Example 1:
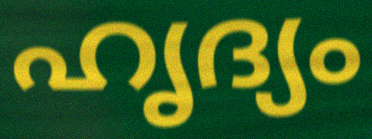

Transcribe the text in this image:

ഹൃദ്യം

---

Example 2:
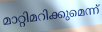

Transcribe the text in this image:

മാറ്റിമറിക്കുമെന്ന്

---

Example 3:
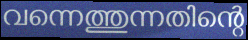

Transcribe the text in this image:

വന്നെത്തുന്നതിന്റെ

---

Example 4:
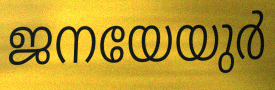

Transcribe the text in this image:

ജനയേയുർ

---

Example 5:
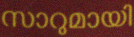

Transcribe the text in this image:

സാറുമായി